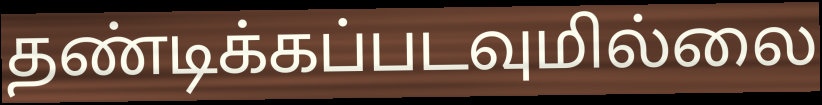
தண்டிக்கப்படவுமில்லை